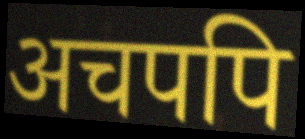
अचपपि